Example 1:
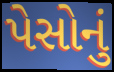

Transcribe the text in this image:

પેસોનું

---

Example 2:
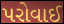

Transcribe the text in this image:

પરોવાઈ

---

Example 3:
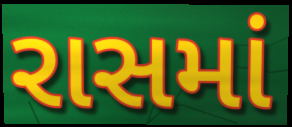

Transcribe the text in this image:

રાસમાં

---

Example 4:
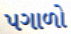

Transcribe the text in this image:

પગાળો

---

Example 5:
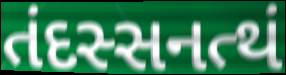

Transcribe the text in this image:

તંદસ્સનત્થં